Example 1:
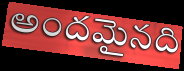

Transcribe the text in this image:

అందమైనది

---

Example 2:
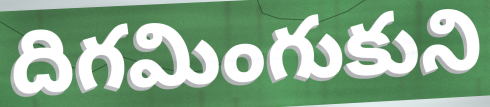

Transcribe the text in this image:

దిగమింగుకుని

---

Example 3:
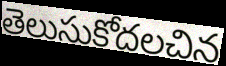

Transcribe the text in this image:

తెలుసుకోదలచిన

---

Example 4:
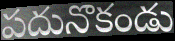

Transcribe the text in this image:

పదునొకండు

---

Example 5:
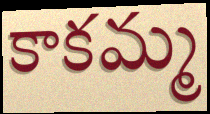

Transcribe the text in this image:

కాకమ్మ